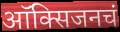
ऑक्सिजनचं